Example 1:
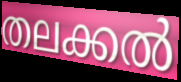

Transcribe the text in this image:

തലക്കൽ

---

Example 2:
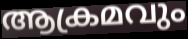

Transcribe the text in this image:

ആക്രമവും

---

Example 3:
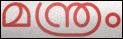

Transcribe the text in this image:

മന്ത്രം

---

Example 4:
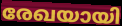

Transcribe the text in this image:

രേഖയായി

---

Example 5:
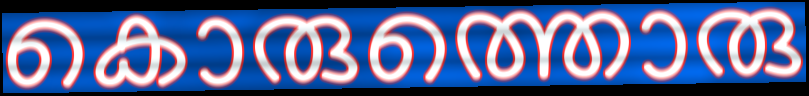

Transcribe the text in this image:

കൊരുത്തൊരു